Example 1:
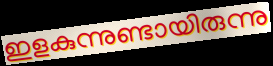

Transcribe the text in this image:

ഇളകുന്നുണ്ടായിരുന്നു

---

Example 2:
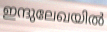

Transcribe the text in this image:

ഇന്ദുലേഖയിൽ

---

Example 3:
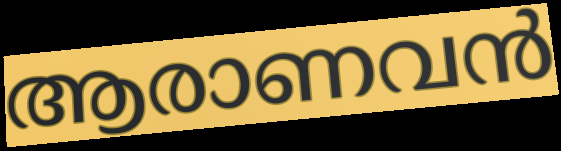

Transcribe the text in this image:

ആരാണവൻ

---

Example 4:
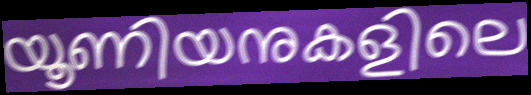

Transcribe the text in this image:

യൂണിയനുകളിലെ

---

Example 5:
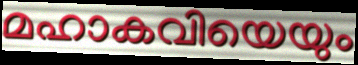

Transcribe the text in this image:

മഹാകവിയെയും